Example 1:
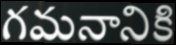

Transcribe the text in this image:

గమనానికి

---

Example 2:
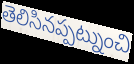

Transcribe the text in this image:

తెలిసినప్పట్నుంచి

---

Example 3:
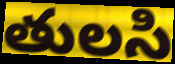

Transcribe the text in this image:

తులసి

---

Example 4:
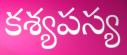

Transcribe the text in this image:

కశ్యపస్య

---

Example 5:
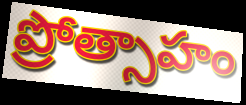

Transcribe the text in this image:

ప్రోత్సాహం